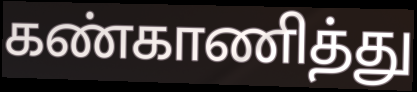
கண்காணித்து